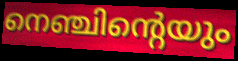
നെഞ്ചിന്റെയും